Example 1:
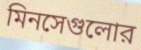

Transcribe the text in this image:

মিনসেগুলোর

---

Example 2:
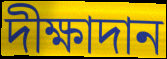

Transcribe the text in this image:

দীক্ষাদান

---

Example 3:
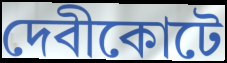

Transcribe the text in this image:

দেবীকোটে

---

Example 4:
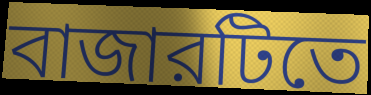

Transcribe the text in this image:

বাজারটিতে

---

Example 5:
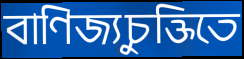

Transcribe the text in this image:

বাণিজ্যচুক্তিতে